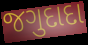
જગુદાદા